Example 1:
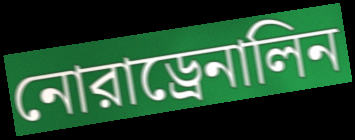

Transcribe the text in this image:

নোরাড্রেনালিন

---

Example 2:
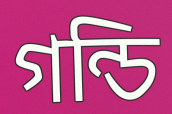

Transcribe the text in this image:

গন্ডি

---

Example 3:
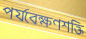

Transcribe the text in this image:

পর্যবেক্ষণশক্তি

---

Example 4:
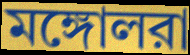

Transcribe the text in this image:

মঙ্গোলরা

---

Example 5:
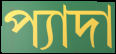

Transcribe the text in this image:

প্যাদা